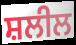
ਸ਼ਲੀਲ